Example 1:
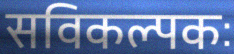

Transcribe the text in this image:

सविकल्पकः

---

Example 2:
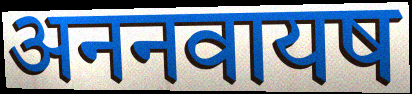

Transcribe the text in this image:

अननवायष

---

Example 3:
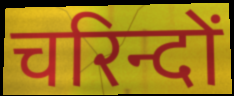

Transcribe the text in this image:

चरिन्दों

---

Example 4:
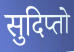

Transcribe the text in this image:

सुदिप्तो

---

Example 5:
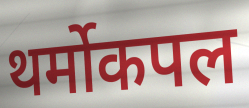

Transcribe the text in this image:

थर्मोकपल